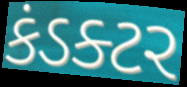
કંડક્ટર